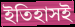
ইতিহাসই